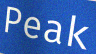
Peak